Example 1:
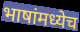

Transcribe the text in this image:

भाषांमध्येच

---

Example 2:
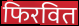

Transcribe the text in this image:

फिरवित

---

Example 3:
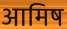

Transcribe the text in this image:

आमिष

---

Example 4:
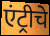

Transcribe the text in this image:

एंट्रीचे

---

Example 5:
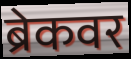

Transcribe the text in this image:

ब्रेकवर